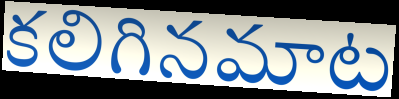
కలిగినమాట